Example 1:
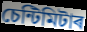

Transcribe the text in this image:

চেন্টিমিটাৰ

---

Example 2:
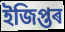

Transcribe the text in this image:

ইজিপ্তৰ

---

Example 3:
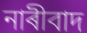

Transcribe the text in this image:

নাৰীবাদ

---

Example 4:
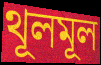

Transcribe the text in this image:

থূলমূল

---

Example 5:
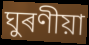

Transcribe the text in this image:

ঘুৰণীয়া